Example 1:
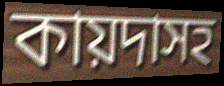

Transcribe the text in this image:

কায়দাসহ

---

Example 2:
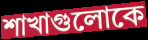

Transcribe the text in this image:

শাখাগুলোকে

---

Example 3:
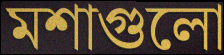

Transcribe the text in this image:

মশাগুলো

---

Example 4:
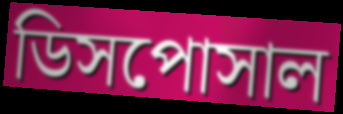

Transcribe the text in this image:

ডিসপোসাল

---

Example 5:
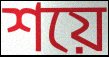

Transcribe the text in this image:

শয়ে